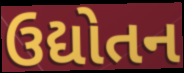
ઉદ્યોતન